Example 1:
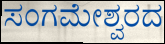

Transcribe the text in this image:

ಸಂಗಮೇಶ್ವರದ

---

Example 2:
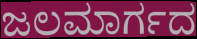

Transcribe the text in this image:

ಜಲಮಾರ್ಗದ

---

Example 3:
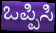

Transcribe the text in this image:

ಒಪ್ಪಿಸಿ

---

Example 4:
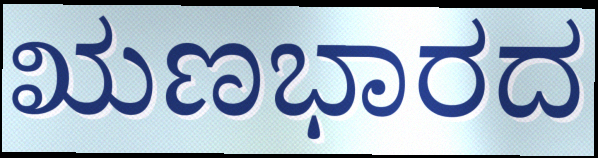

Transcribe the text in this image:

ಋಣಭಾರದ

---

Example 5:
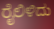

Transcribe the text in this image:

ರೈಲಿಳಿದು